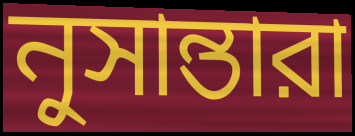
নুসান্তারা